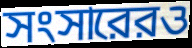
সংসারেরও